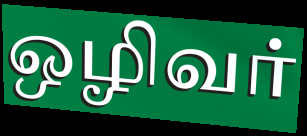
ஒழிவர்